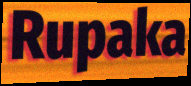
Rupaka